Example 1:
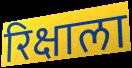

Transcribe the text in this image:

रिक्षाला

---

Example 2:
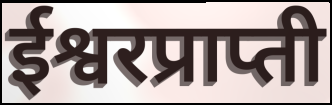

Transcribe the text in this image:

ईश्वरप्राप्ती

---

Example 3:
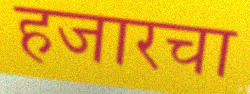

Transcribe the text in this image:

हजारचा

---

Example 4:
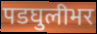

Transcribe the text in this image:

पडघुलीभर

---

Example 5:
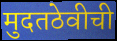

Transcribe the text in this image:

मुदतठेवीची